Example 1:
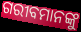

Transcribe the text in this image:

ଗରୀବମାନଙ୍କୁ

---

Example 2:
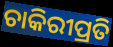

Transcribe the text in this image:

ଚାକିରୀପ୍ରତି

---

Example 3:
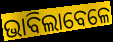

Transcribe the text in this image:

ଭାବିଲାବେଳେ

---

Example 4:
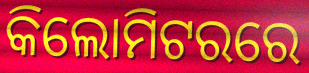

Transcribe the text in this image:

କିଲୋମିଟରରେ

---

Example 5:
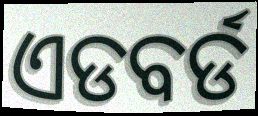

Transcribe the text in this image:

ଏଡବର୍ଡ